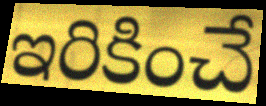
ఇరికించే